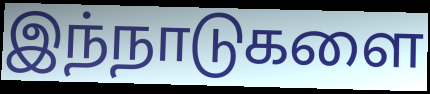
இந்நாடுகளை